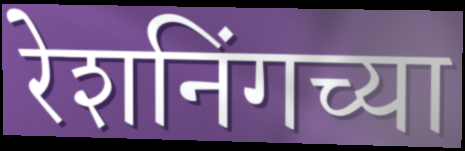
रेशनिंगच्या